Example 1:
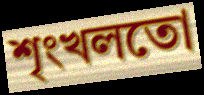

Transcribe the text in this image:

শৃংখলতো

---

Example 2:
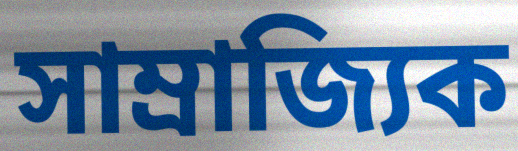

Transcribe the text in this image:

সাম্ৰাজ্যিক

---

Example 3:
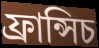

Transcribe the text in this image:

ফ্ৰান্সিচ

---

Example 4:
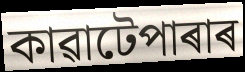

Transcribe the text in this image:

কাৱাটেপাৰাৰ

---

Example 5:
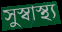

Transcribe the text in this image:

সুস্বাস্থ্য